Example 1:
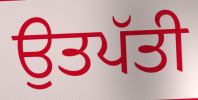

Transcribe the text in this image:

ਉਤਪੱਤੀ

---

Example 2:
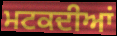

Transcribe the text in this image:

ਮਟਕਦੀਆਂ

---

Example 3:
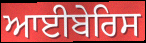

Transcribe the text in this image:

ਆਈਬੇਰਿਸ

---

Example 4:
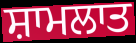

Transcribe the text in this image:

ਸ਼ਾਮਲਾਤ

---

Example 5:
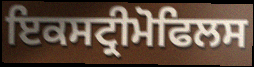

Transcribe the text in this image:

ਇਕਸਟ੍ਰੀਮੋਫਿਲਸ